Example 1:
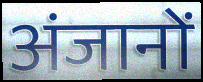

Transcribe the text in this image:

अंजानों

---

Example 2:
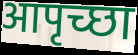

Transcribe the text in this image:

आपृच्छा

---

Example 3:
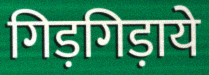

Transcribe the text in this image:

गिड़गिड़ाये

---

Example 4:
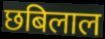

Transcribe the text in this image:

छबिलाल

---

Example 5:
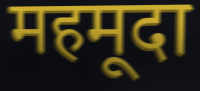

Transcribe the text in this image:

महमूदा